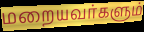
மறையவர்களும்